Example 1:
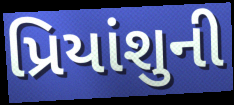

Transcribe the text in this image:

પ્રિયાંશુની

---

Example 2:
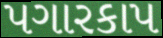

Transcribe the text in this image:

પગારકાપ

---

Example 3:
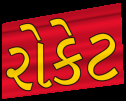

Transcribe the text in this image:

રોકેટ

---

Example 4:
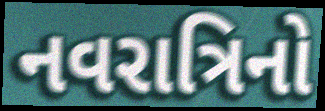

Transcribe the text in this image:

નવરાત્રિનો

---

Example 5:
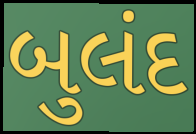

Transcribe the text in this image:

બુલંદ